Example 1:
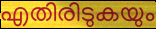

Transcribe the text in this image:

എതിരിടുകയും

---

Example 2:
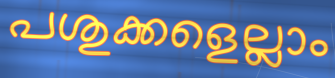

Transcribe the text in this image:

പശുക്കളെല്ലാം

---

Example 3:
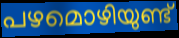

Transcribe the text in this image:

പഴമൊഴിയുണ്ട്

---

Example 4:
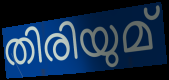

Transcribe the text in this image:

തിരിയുമ്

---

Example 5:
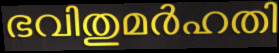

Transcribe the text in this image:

ഭവിതുമർഹതി